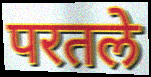
परतले